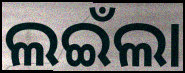
ଲଇଁଲା